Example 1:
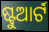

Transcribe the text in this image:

ଷ୍ଟୁଆର୍ଟ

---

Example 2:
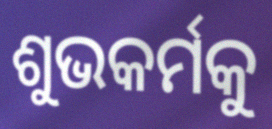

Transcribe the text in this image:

ଶୁଭକର୍ମକୁ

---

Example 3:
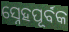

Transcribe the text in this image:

ସ୍ନେହପୂର୍ବକ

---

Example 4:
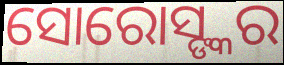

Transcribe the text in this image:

ସୋରୋସ୍ଙ୍କର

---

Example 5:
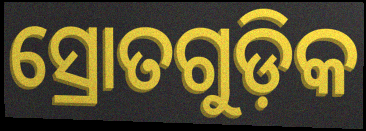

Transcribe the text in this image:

ସ୍ରୋତଗୁଡ଼ିକ